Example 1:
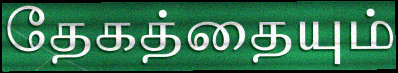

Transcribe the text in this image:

தேகத்தையும்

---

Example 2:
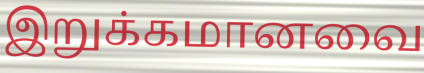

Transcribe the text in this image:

இறுக்கமானவை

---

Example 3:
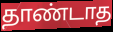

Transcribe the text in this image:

தாண்டாத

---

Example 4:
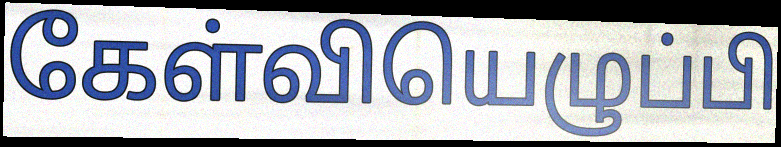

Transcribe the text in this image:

கேள்வியெழுப்பி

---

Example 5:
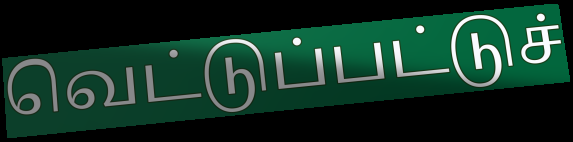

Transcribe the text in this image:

வெட்டுப்பட்டுச்